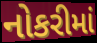
નોકરીમાં